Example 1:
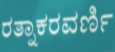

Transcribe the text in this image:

ರತ್ನಾಕರವರ್ಣಿ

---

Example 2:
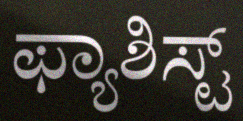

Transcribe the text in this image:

ಫ್ಯಾಶಿಸ್ಟ್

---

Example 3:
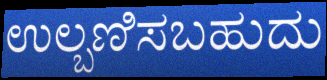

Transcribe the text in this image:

ಉಲ್ಬಣಿಸಬಹುದು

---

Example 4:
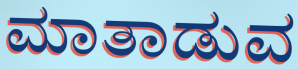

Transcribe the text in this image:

ಮಾತಾಡುವ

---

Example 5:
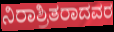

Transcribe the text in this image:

ನಿರಾಶ್ರಿತರಾದವರ